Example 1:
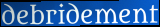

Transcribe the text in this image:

debridement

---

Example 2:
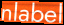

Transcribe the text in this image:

nlabel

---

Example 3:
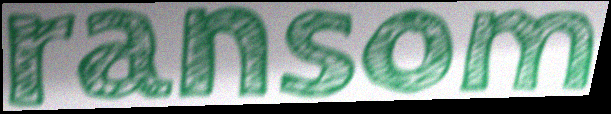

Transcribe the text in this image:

ransom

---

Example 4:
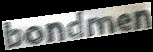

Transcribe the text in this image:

bondmen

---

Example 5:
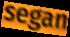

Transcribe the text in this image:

segan